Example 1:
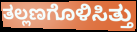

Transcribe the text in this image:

ತಲ್ಲಣಗೊಳಿಸಿತ್ತು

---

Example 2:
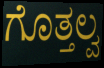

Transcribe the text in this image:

ಗೊತ್ತಲ್ವ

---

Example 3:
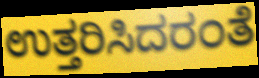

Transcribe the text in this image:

ಉತ್ತರಿಸಿದರಂತೆ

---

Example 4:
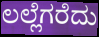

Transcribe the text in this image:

ಲಲ್ಲೆಗರೆದು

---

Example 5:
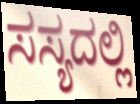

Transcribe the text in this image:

ಸಸ್ಯದಲ್ಲಿ